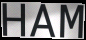
HAM